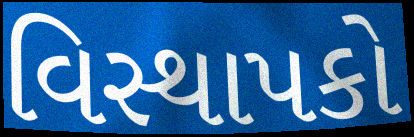
વિસ્થાપકો